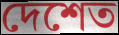
দেশেত